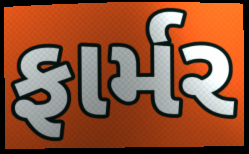
ફાર્મર